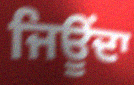
ਜਿਊਂਦਾ